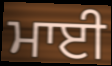
ਮਾਈ